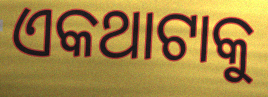
ଏକଥାଟାକୁ